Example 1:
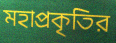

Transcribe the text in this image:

মহাপ্রকৃতির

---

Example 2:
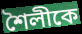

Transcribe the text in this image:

শৈলীকে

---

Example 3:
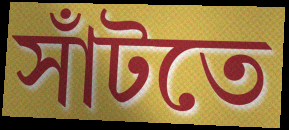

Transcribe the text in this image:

সাঁটতে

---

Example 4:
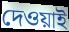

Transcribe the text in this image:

দেওয়াই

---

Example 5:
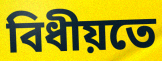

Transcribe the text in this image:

বিধীয়তে